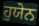
ਹੁਯੇਨ